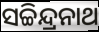
ସଚ୍ଚିନ୍ଦ୍ରନାଥ